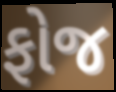
ફોજ